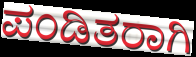
ಪಂಡಿತರಾಗಿ